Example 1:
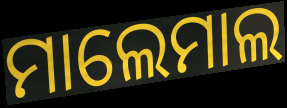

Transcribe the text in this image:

ମାଲେମାଲ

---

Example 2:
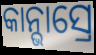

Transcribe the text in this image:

କାନ୍ଭାସ୍ରେ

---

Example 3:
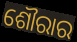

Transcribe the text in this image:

ଶୌରାର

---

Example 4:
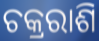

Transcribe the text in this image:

ଚକ୍ରରାଶି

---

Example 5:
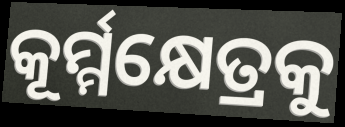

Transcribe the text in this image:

କୂର୍ମ୍ମକ୍ଷେତ୍ରକୁ